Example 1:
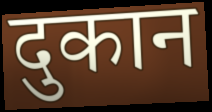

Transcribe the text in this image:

दुकान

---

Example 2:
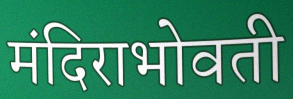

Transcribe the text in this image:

मंदिराभोवती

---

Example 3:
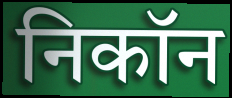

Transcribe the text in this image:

निकॉन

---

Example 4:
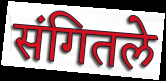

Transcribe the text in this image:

संगितले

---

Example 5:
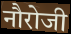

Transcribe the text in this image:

नौरोजी